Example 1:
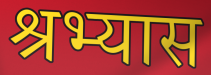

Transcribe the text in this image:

श्रभ्यास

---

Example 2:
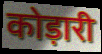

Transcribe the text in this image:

कोड़ारी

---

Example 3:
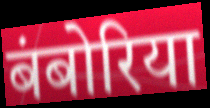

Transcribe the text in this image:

बंबोरिया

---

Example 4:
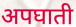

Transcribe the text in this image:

अपघाती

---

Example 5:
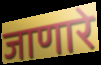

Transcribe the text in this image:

जाणारे